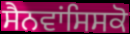
ਸੈਨਵਾਂਸਿਸਕੋ